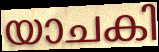
യാചകി